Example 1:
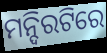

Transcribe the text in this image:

ମନ୍ଦିରଟିରେ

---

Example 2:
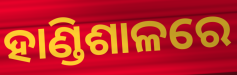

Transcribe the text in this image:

ହାଣ୍ଡିଶାଳରେ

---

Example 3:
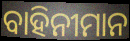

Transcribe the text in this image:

ବାହିନୀମାନ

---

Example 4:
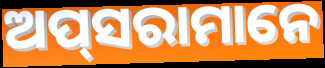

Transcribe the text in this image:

ଅପ୍‌ସରାମାନେ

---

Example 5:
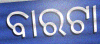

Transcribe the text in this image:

ବାରଟା